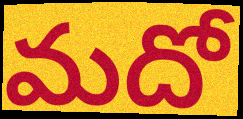
మదో